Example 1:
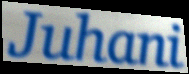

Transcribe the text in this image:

Juhani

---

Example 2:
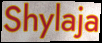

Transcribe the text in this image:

Shylaja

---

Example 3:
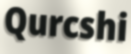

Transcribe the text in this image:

Qurcshi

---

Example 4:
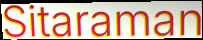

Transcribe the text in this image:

Sitaraman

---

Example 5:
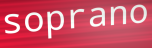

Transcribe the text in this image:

soprano